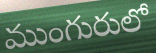
ముంగురులో